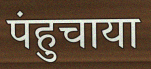
पंहुचाया